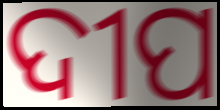
ଦୀପ